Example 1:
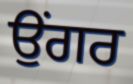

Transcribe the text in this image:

ਉਂਗਰ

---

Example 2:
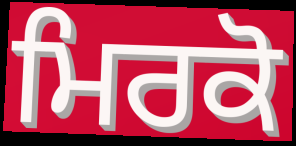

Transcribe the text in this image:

ਮਿਰਕੋ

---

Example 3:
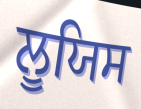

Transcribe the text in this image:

ਲੂਯਿਸ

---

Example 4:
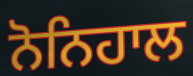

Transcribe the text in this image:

ਨੋਨਿਹਾਲ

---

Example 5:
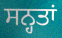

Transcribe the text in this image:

ਸਨ੍ਹਤਾਂ